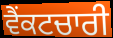
ਵੈਂਕਟਚਾਰੀ